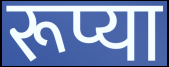
रूप्या